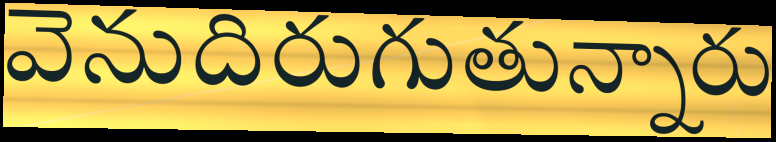
వెనుదిరుగుతున్నారు